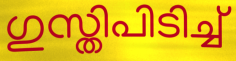
ഗുസ്തിപിടിച്ച്